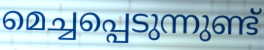
മെച്ചപ്പെടുന്നുണ്ട്